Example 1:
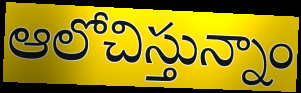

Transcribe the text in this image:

ఆలోచిస్తున్నాం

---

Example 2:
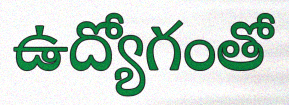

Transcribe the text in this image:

ఉద్యోగంతో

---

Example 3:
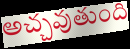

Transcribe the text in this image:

అచ్చవుతుంది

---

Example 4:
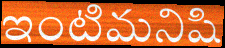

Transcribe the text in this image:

ఇంటిమనిషి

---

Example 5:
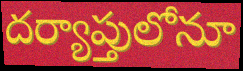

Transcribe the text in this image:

దర్యాప్తులోనూ